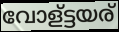
വോള്ട്ടയര്